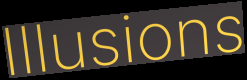
Illusions